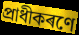
প্ৰাধীকৰণে